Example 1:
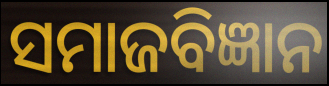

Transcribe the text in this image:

ସମାଜବିଜ୍ଞାନ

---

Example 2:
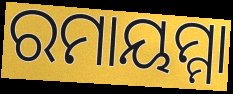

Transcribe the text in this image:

ରମାୟମ୍ମା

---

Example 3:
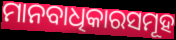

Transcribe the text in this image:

ମାନବାଧିକାରସମୂହ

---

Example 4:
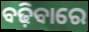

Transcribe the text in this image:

ବଢ଼ିବାରେ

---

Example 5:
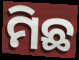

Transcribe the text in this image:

ମିଛ